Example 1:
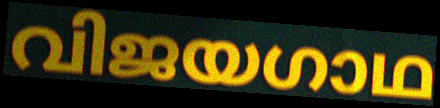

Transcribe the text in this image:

വിജയഗാഥ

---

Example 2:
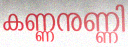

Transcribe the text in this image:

കണ്ണനുണ്ണി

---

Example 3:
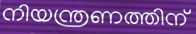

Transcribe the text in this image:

നിയന്ത്രണത്തിന്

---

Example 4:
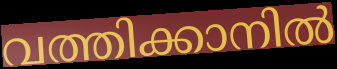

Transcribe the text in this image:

വത്തിക്കാനിൽ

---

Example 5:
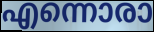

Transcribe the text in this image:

എന്നൊരാ